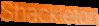
Shackleton